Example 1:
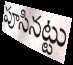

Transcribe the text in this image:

పూసినట్టు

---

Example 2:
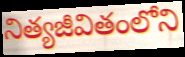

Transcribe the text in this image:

నిత్యజీవితంలోని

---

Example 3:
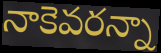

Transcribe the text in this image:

నాకెవరన్నా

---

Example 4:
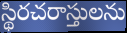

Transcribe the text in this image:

స్థిరచరాస్తులను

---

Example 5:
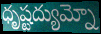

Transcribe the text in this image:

ధృష్టద్యుమ్నో